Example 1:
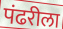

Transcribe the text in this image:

पंढरीला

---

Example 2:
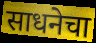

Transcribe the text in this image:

साधनेचा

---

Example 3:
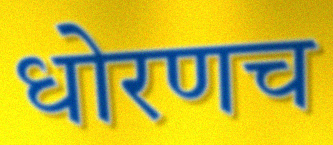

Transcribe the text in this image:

धोरणच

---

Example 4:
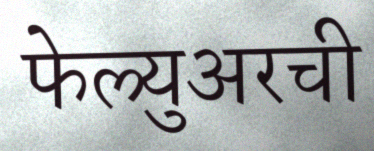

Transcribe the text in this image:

फेल्युअरची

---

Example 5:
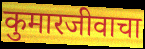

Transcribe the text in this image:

कुमारजीवाचा